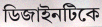
ডিজাইনটিকে